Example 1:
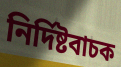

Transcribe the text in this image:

নিৰ্দিষ্টবাচক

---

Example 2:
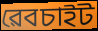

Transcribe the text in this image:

ৱেবচাইট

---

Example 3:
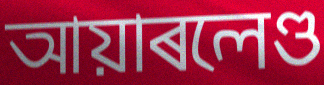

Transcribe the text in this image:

আয়াৰলেণ্ড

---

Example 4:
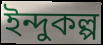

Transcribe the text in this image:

ইন্দুকল্প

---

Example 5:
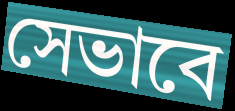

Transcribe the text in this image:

সেভাবে